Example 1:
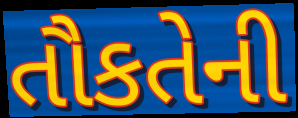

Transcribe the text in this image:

તૌકતેની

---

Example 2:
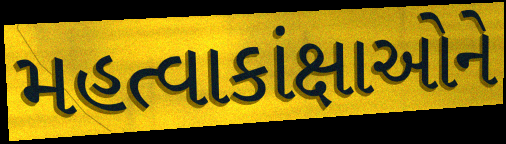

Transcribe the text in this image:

મહત્વાકાંક્ષાઓને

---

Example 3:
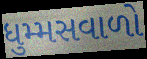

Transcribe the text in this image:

ધુમ્મસવાળો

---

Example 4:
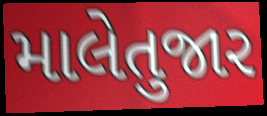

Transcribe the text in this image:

માલેતુજાર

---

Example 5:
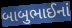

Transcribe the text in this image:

બાબુભાઈનાં